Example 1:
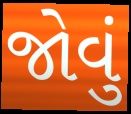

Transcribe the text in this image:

જોવું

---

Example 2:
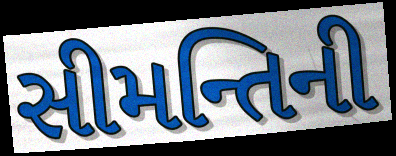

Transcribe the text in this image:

સીમન્તિની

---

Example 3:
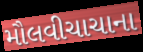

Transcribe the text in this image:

મૌલવીચાચાના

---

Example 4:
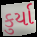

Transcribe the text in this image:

કુર્યા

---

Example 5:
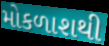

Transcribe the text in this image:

મોકળાશથી